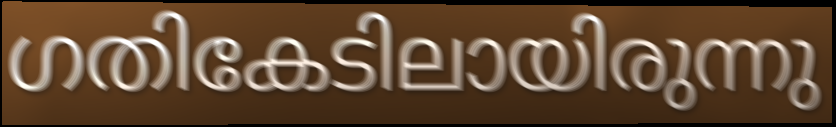
ഗതികേടിലായിരുന്നു